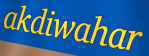
akdiwahar